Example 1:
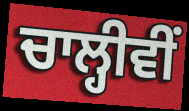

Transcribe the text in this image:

ਚਾਲ੍ਹੀਵੀਂ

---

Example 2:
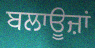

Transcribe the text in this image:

ਬਲਾਊਜ਼ਾਂ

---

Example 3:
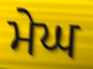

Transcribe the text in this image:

ਮੇਘ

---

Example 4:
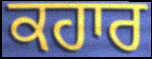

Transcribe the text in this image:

ਕਹਾਰ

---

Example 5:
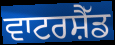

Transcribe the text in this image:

ਵਾਟਰਸ਼ੈੱਡ